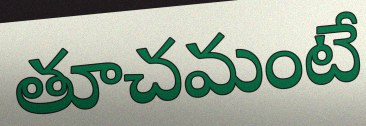
తూచమంటే